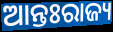
ଆନ୍ତଃରାଜ୍ୟ